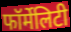
फॉर्मेलिटी